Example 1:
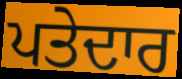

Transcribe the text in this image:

ਪਤੇਦਾਰ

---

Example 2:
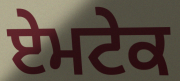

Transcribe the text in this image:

ਏਮਟੇਕ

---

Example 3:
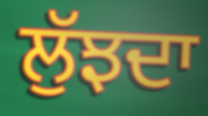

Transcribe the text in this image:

ਲੁੱਝਦਾ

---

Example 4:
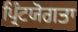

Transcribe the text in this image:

ਪ੍ਰਿੰਟਯੋਗਤਾ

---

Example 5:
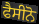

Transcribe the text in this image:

ਫੈਸੀਨੋ